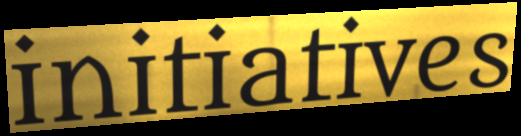
initiatives